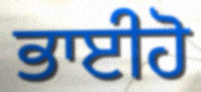
ਭਾਈਹੋ